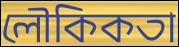
লৌকিকতা